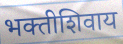
भक्तीशिवाय